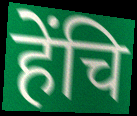
हेंचि